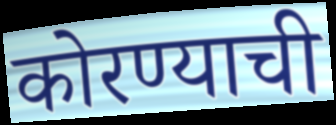
कोरण्याची